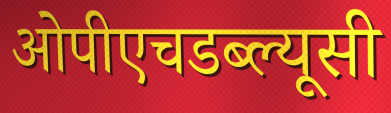
ओपीएचडब्ल्यूसी